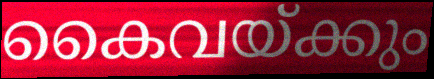
കൈവയ്ക്കും